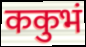
ककुभं